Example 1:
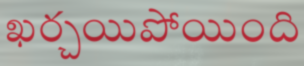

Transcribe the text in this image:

ఖర్చయిపోయింది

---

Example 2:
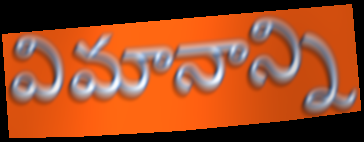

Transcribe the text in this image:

విమానాన్ని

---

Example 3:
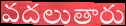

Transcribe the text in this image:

వదలుతారు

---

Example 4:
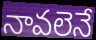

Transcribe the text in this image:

నావలెనే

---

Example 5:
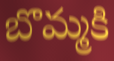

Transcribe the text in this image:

బొమ్మకి